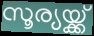
സൂര്യയ്ക്ക്